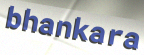
bhankara